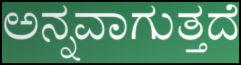
ಅನ್ನವಾಗುತ್ತದೆ